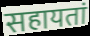
सहायतां